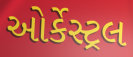
ઓર્કેસ્ટ્રલ